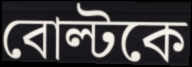
বোল্টকে